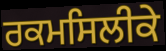
ਰਕਮਸਿਲੀਕੇ